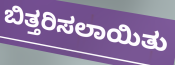
ಬಿತ್ತರಿಸಲಾಯಿತು